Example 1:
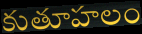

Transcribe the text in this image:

కుతూహలం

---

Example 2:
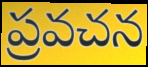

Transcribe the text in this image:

ప్రవచన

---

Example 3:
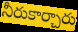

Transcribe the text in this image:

నీరుకార్చారు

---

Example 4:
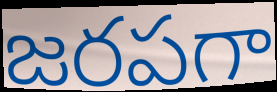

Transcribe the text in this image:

జరపగా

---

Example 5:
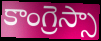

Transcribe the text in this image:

కాంగ్రెస్సా